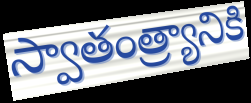
స్వాతంత్ర్యానికి